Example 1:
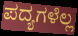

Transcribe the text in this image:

ಪದ್ಯಗಳೆಲ್ಲ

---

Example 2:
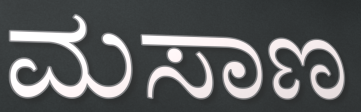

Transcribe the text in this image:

ಮಸಾಣ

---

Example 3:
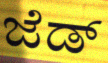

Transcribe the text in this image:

ಜೆಡ್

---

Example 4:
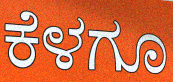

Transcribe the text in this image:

ಕೆಳಗೂ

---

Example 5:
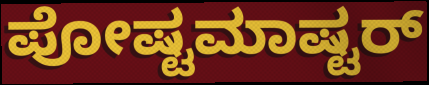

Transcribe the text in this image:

ಪೋಷ್ಟಮಾಷ್ಟರ್